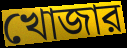
খোজার